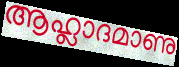
ആഹ്ലാദമാണു